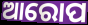
ଆରୋପ